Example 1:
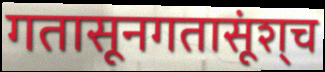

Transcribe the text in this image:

गतासूनगतासूंश्च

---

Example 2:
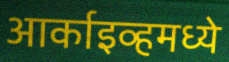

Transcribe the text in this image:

आर्काइव्हमध्ये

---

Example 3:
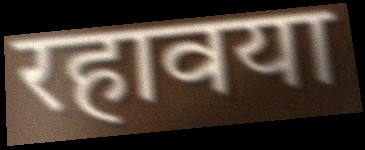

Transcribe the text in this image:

रहावया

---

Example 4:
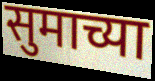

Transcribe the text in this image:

सुमाच्या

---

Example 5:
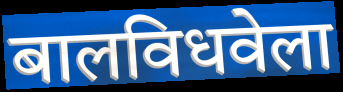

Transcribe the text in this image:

बालविधवेला